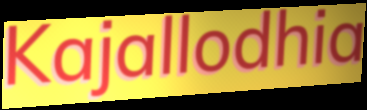
Kajallodhia